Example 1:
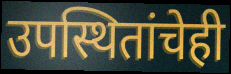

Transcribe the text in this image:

उपस्थितांचेही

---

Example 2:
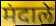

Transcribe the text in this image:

मंदाले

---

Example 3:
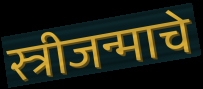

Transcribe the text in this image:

स्त्रीजन्माचे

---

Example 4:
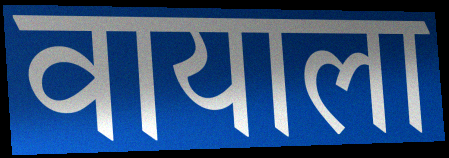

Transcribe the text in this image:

वायाला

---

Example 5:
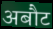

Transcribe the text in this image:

अबौट